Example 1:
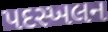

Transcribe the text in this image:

પદસ્ખલન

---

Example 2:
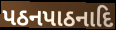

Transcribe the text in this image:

પઠનપાઠનાદિ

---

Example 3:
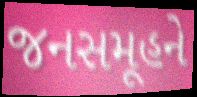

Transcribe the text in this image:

જનસમૂહને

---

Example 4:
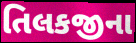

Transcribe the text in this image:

તિલકજીના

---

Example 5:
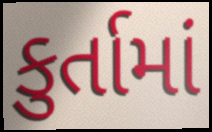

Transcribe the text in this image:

કુર્તામાં